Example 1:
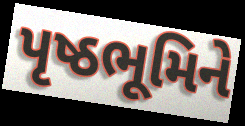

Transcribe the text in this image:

પૃષ્ઠભૂમિને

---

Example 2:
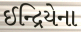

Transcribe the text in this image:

ઈન્દ્રિયેના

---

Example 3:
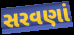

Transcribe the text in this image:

સરવણાં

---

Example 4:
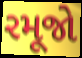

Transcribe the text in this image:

રમૂજો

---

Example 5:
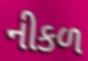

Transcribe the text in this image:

નીકળ